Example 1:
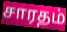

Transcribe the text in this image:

சாரதம்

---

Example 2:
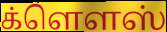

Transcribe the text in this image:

க்ளௌஸ்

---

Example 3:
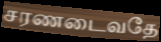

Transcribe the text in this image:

சரணடைவதே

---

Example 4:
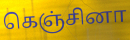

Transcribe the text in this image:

கெஞ்சினா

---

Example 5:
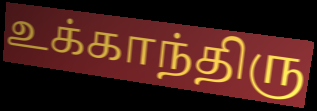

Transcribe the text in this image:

உக்காந்திரு